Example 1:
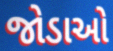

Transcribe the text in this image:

જોડાઓ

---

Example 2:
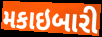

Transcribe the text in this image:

મકાઇબારી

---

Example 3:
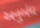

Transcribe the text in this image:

અનુબંધ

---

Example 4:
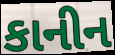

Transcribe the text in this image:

કાનીન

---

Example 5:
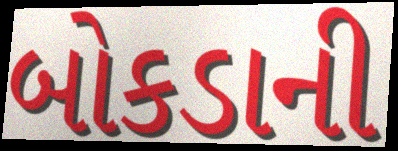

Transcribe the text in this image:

બોકડાની